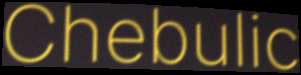
Chebulic